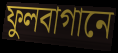
ফুলবাগানে